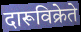
दारूविक्रेते